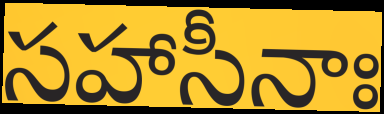
సహాసీనాః